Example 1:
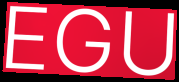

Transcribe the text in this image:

EGU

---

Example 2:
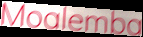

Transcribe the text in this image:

Moalemba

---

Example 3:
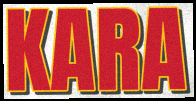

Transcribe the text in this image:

KARA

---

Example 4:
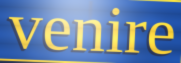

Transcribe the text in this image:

venire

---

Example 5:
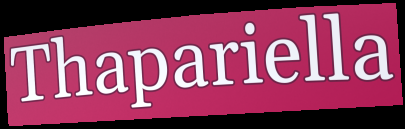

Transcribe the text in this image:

Thapariella